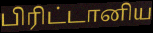
பிரிட்டானிய